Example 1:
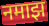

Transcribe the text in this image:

नमाझ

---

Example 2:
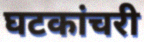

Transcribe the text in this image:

घटकांचरी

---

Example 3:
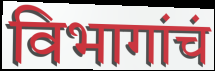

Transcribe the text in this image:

विभागांचं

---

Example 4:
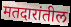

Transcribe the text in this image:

मतदारांतील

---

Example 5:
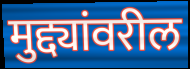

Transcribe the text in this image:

मुद्द्यांवरील